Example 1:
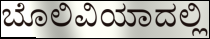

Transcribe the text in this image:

ಬೊಲಿವಿಯಾದಲ್ಲಿ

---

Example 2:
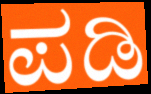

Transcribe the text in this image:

ಪಡಿ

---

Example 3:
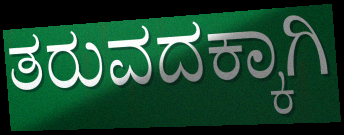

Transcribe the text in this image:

ತರುವದಕ್ಕಾಗಿ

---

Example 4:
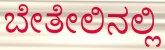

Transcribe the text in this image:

ಬೇತೇಲಿನಲ್ಲಿ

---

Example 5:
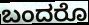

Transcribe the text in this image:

ಬಂದರೊ